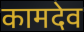
कामदेव